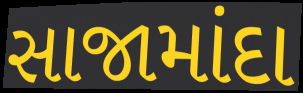
સાજામાંદા